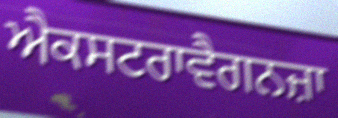
ਐਕਸਟਰਾਵੈਗਨਜ਼ਾ